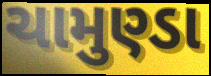
ચામુણ્ડા